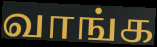
வாங்க